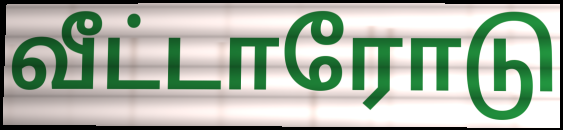
வீட்டாரோடு